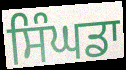
ਸਿੰਘਡਾ